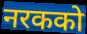
नरकको